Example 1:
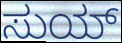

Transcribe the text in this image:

ಸುಯ್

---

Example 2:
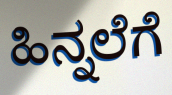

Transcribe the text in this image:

ಹಿನ್ನಲೆಗೆ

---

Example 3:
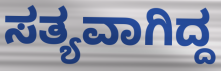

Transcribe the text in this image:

ಸತ್ಯವಾಗಿದ್ದ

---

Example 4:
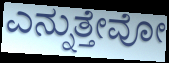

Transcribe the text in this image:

ಎನ್ನುತ್ತೇವೋ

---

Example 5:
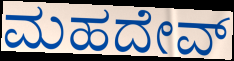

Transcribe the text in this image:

ಮಹದೇವ್